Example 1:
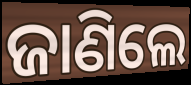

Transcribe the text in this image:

ଜାଣିଲେ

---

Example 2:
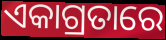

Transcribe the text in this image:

ଏକାଗ୍ରତାରେ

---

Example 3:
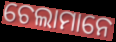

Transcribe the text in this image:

ଚେଲାମାନେ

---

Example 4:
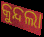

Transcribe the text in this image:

କୁନ୍ଦଲା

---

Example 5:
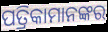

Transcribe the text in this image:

ପତ୍ରିକାମାନଙ୍କର